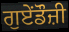
ਗੁਏਂਡੌਜ਼ੀ